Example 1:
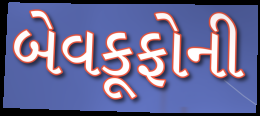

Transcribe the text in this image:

બેવકૂફોની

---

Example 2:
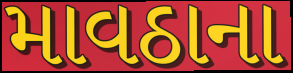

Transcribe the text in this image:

માવઠાના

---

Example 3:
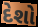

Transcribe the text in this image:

દેશો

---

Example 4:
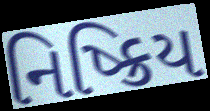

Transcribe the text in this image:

નિષ્ક્રિય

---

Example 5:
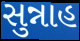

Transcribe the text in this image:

સુન્નાહ